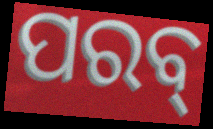
ପରବ୍